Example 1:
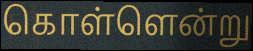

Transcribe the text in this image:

கொள்ளென்று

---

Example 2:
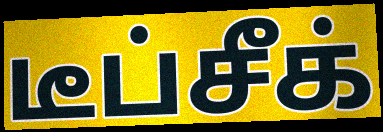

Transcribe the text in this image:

டீப்சீக்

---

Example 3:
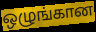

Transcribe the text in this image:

ஒழுங்கான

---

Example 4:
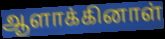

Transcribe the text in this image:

ஆளாக்கினாள்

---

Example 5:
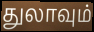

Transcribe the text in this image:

துலாவும்